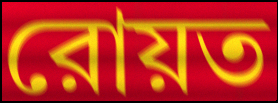
রোয়ত